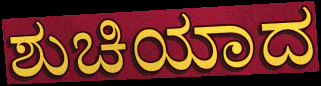
ಶುಚಿಯಾದ